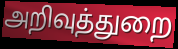
அறிவுத்துறை